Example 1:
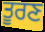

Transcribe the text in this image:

ਤੂਰਣ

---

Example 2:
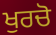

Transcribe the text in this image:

ਖੁਰਚੋ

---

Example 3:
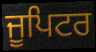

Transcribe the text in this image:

ਜੂਪਿਟਰ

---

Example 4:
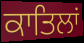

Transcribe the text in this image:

ਕਾਤਿਲਾਂ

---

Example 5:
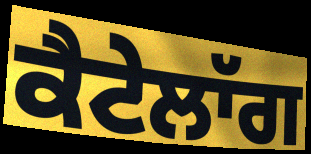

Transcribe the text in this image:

ਕੈਟੇਲਾੱਗ